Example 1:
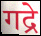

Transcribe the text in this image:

गद्रे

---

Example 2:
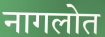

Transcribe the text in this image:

नागलोत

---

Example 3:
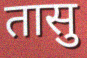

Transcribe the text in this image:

तासु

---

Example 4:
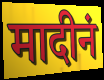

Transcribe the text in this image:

मादीनं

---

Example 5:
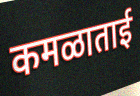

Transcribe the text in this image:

कमळाताई